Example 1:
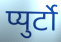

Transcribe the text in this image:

प्युर्टो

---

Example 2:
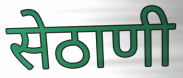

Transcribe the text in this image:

सेठाणी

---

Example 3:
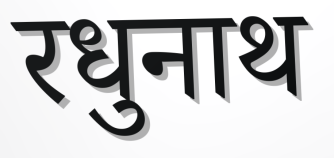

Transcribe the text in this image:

रधुनाथ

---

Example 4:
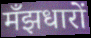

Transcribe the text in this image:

मँझधारों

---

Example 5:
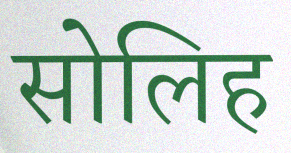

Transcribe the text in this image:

सोलिह